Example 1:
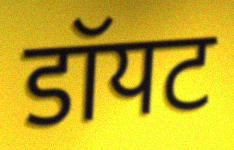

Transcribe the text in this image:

डॉयट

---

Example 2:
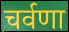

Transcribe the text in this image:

चर्वणा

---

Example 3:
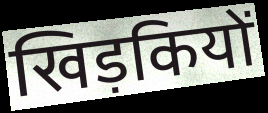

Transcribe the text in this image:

खिड़कियों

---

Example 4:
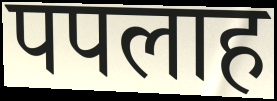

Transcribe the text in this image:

पपलाह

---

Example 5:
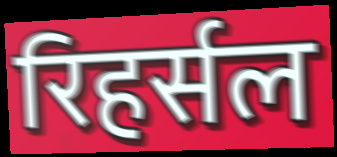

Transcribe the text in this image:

रिहर्सल